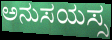
ಅನುಸಯಸ್ಸ